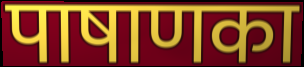
पाषाणका